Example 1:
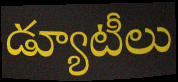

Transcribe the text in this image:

డ్యూటీలు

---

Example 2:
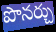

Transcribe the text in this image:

పొనర్చు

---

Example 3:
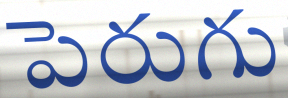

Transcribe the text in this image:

పెరుగు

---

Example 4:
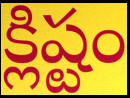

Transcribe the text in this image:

క్లిష్టం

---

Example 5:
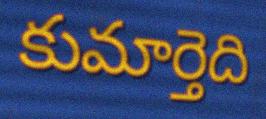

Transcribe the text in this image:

కుమార్తెది